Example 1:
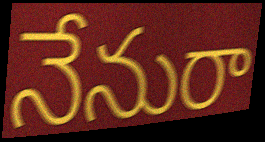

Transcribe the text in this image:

నేనురా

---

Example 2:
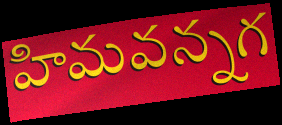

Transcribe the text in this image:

హిమవన్నగ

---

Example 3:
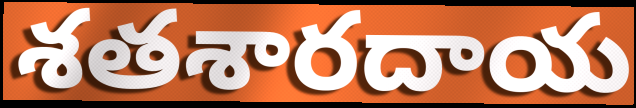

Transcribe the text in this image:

శతశారదాయ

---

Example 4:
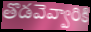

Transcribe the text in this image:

తొడవెవ్వారికి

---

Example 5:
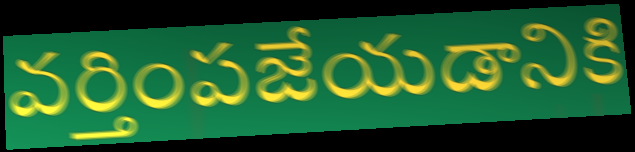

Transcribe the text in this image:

వర్తింపజేయడానికి